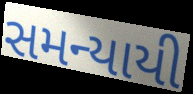
સમન્યાયી